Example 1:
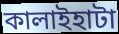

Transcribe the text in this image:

কালাইহাটা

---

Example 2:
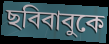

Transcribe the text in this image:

ছবিবাবুকে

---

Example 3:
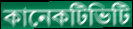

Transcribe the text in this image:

কানেকটিভিটি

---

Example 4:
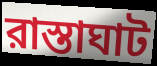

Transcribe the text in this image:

রাস্তাঘাট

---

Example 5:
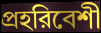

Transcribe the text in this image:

প্রহরিবেশী